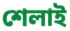
শেলাই